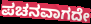
ಪಚನವಾಗದೇ